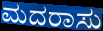
ಮದರಾಸು